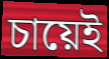
চায়েই